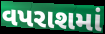
વપરાશમાં